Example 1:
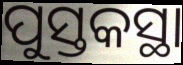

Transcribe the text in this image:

ପୁସ୍ତକସ୍ଥା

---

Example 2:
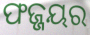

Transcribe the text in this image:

ଫଜ୍ଜୟର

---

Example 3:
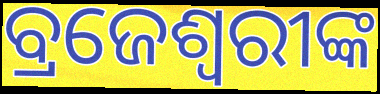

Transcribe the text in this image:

ବ୍ରଜେଶ୍ୱରୀଙ୍କ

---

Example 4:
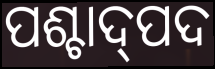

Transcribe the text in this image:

ପଶ୍ଚାଦ୍‍ପଦ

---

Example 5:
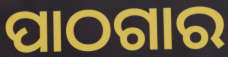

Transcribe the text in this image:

ପାଠଗାର